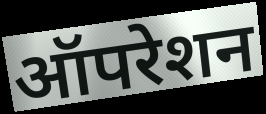
ऑपरेशन